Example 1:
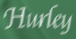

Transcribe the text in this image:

Hurley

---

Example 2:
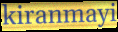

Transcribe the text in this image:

kiranmayi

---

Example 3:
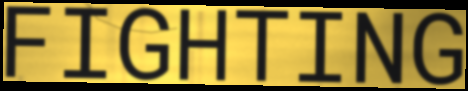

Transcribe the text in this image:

FIGHTING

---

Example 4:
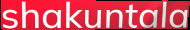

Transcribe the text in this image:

shakuntala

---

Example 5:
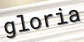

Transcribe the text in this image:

gloria